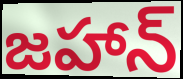
జహాన్